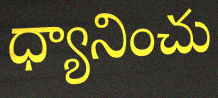
ధ్యానించు